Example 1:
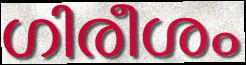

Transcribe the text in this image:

ഗിരീശം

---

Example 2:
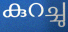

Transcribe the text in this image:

കുറച്ചു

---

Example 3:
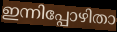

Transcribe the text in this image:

ഇന്നിപ്പോഴിതാ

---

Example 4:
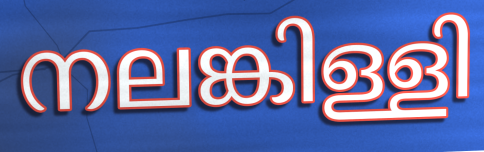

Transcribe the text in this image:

നലങ്കിള്ളി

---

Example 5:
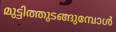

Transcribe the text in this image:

മുട്ടിത്തുടങ്ങുമ്പോൾ